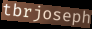
tbrjoseph